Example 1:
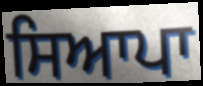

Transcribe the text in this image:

ਸਿਆਪਾ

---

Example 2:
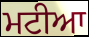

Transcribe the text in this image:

ਮਟੀਆ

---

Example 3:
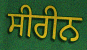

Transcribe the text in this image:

ਸੀਰੀਨ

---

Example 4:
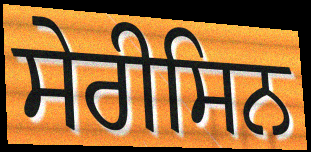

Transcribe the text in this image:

ਸੇਰੀਸਿਨ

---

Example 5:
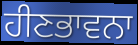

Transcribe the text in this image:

ਹੀਣਭਾਵਨਾ